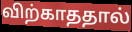
விற்காததால்